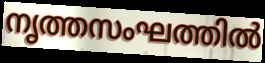
നൃത്തസംഘത്തിൽ